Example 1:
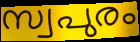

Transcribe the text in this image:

സ്വപുരം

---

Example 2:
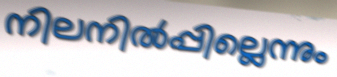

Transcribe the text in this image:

നിലനിൽപ്പില്ലെന്നും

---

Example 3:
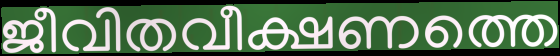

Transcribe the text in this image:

ജീവിതവീക്ഷണത്തെ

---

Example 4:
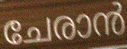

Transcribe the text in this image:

ചേരാൻ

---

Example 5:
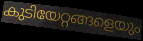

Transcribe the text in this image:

കുടിയേറ്റങ്ങളെയും